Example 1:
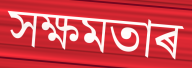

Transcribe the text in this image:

সক্ষমতাৰ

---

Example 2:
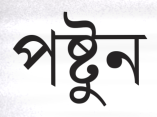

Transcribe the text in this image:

পষ্টুন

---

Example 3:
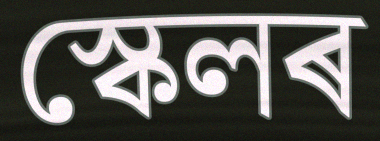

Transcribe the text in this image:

স্কেলৰ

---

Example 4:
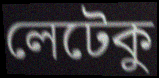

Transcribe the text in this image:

লেটেকু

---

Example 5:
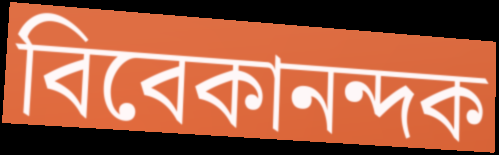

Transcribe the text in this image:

বিবেকানন্দক